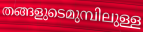
തങ്ങളുടെമുമ്പിലുള്ള